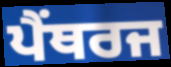
ਪੈਂਥਰਜ